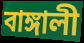
বাঙ্গালী